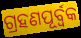
ଗ୍ରହଣପୂର୍ବ୍ବକ